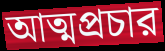
আত্মপ্রচার